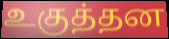
உகுத்தன